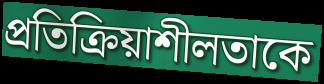
প্রতিক্রিয়াশীলতাকে